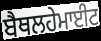
ਬੈਥਲਹੇਮਾਈਟ